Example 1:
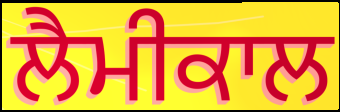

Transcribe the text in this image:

ਲੈਮੀਕਾਲ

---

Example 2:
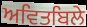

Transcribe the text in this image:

ਅਵਿਤਬਿਲੇ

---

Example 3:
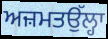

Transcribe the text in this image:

ਅਜ਼ਮਤਉੱਲ੍ਹਾ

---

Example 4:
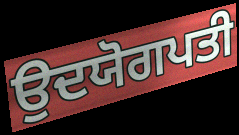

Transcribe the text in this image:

ਉਦਯੋਗਪਤੀ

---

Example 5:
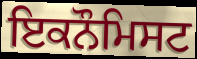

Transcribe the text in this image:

ਇਕਨੌਮਿਸਟ